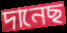
দানেছ